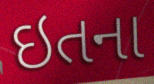
ઇતના